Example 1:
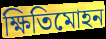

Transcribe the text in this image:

ক্ষিতিমোহন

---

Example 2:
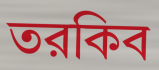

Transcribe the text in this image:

তরকিব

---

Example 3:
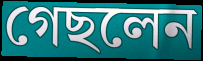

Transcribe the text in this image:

গেছলেন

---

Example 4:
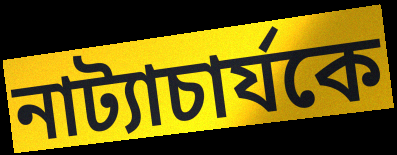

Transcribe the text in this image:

নাট্যাচার্যকে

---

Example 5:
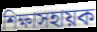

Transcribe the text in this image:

শিক্ষাসহায়ক